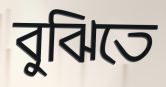
বুঝিতে